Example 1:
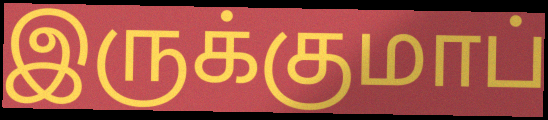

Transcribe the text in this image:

இருக்குமாப்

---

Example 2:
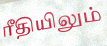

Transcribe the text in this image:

ரீதியிலும்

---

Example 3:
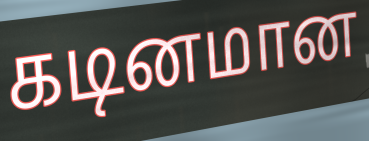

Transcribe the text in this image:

கடினமான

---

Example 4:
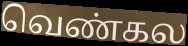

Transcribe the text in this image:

வெண்கல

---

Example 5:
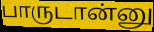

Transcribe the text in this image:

பாருடான்னு